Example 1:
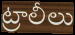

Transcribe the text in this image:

ట్రాలీలు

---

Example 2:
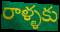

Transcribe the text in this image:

రాళ్ళకు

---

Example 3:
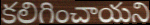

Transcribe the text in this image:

కలిగించాయని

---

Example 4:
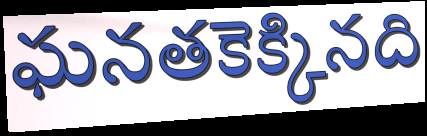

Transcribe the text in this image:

ఘనతకెక్కినది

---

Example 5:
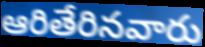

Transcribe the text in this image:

ఆరితేరినవారు